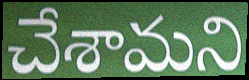
చేశామని